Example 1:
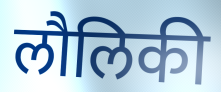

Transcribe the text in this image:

लौलिकी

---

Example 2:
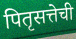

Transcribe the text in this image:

पितृसत्तेची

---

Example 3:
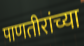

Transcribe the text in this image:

पाणतीरांच्या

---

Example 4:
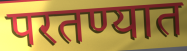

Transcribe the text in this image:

परतण्यात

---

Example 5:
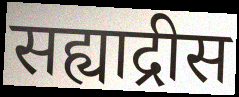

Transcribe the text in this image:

सह्याद्रीस